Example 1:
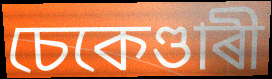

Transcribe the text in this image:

চেকেণ্ডাৰী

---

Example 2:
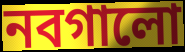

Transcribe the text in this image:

নবগালো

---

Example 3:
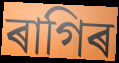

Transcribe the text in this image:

ৰাগিৰ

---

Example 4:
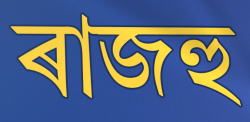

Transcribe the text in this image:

ৰাজহু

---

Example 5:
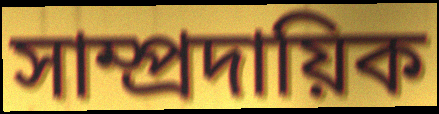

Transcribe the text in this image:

সাম্প্ৰদায়িক